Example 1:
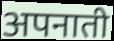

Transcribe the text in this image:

अपनाती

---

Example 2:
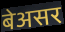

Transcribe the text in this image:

बेअसर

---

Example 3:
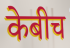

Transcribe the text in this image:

केबीच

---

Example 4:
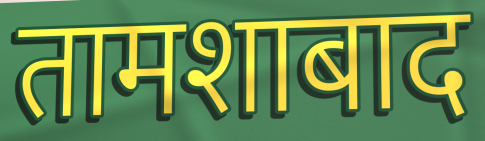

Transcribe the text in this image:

तामशाबाद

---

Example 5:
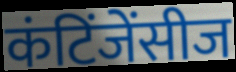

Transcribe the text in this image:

कंटिंजेंसीज